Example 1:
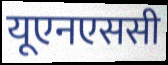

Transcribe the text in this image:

यूएनएससी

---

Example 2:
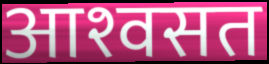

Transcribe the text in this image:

आश्वसत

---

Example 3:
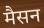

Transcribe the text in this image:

मैसन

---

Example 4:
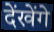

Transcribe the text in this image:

देंखेंगे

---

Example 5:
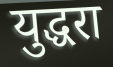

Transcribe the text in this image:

युद्धरा